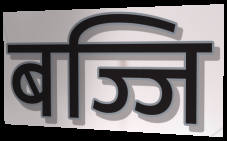
बज्जि